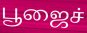
பூஜைச்